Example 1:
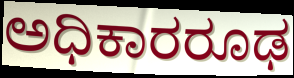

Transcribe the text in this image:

ಅಧಿಕಾರರೂಢ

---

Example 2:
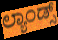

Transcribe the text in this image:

ಲ್ಯಾಂಡ್ಸ್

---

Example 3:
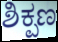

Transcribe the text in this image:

ಶಿಕ್ಪಣ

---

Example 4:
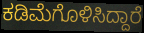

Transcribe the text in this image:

ಕಡಿಮೆಗೊಳಿಸಿದ್ದಾರೆ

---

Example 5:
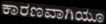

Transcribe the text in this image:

ಕಾರಣವಾಗಿಯೂ